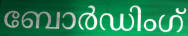
ബോർഡിംഗ്